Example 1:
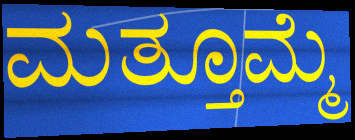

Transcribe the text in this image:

ಮತ್ತೂಮ್ಮೆ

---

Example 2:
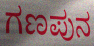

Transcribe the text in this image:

ಗಣಪುನ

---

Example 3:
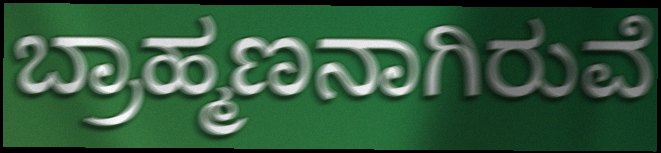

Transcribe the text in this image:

ಬ್ರಾಹ್ಮಣನಾಗಿರುವೆ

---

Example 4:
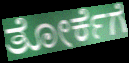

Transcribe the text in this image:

ತೋರ್ಕೆಗೆ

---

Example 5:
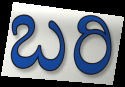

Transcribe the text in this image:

ಬರಿ